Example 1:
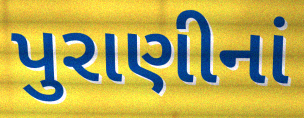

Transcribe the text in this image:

પુરાણીનાં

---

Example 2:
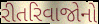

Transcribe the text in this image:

રીતરિવાજોનો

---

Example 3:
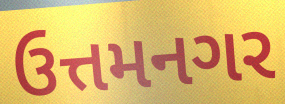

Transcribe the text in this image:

ઉત્તમનગર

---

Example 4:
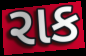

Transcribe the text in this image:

રાક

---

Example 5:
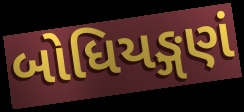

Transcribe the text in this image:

બોધિયઙ્ગણં